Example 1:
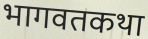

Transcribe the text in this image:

भागवतकथा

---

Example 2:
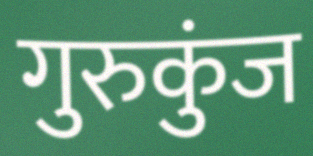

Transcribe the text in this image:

गुरुकुंज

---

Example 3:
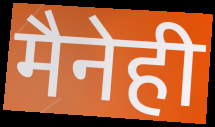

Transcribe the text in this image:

मैनेही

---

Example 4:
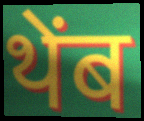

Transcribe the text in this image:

थेंब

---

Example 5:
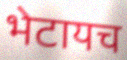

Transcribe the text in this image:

भेटायच